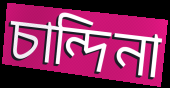
চান্দিনা